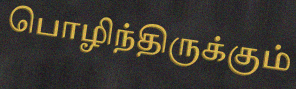
பொழிந்திருக்கும்